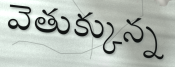
వెతుక్కున్న